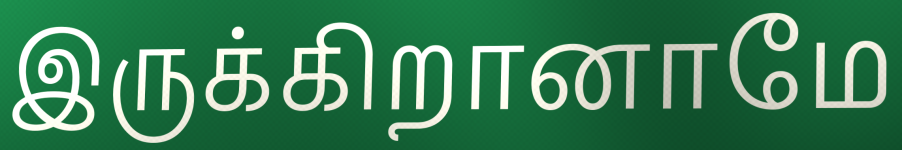
இருக்கிறானாமே